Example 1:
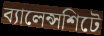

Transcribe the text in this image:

ব্যালেন্সশিটে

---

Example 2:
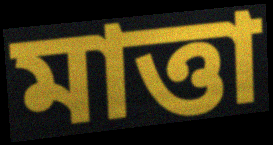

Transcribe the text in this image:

মাত্তা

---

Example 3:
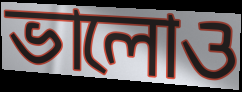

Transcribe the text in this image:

ভালোও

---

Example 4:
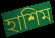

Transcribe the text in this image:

হাশিম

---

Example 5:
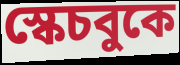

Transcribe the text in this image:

স্কেচবুকে